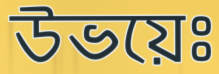
উভয়েঃ